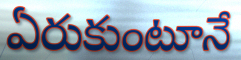
ఏరుకుంటూనే